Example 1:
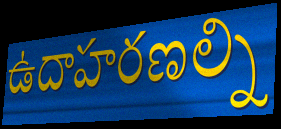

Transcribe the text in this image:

ఉదాహరణల్ని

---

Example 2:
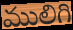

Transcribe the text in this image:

ములిగి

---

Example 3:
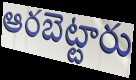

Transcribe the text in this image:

ఆరబెట్టారు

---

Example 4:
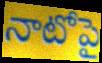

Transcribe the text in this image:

నాటోపై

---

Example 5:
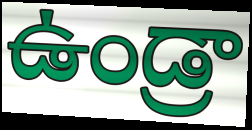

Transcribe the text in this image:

ఉండ్రా